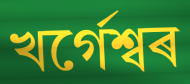
খৰ্গেশ্বৰ